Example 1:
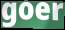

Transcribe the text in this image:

goer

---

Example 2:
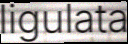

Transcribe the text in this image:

ligulata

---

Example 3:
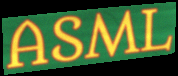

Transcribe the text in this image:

ASML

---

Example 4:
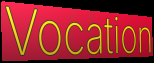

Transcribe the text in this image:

Vocation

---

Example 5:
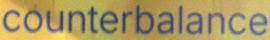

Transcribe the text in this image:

counterbalance